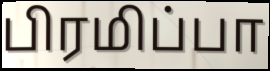
பிரமிப்பா